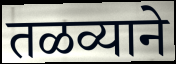
तळव्याने